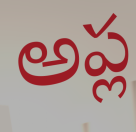
అప్ల